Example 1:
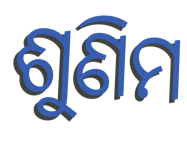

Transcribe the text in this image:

ଶୁଣିମ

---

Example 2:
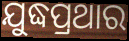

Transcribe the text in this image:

ଯୁଦ୍ଧପ୍ରଥାର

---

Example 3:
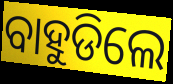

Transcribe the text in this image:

ବାହୁଡିଲେ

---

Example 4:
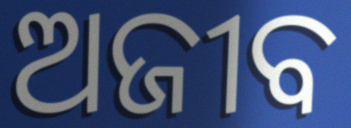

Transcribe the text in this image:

ଅଜୀବ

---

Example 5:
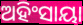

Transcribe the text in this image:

ଅହିଂସାୟା